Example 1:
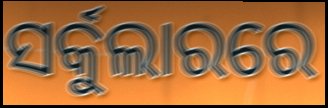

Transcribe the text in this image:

ସର୍କୁଲାରରେ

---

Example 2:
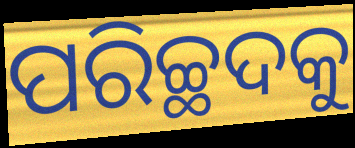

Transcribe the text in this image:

ପରିଚ୍ଛଦକୁ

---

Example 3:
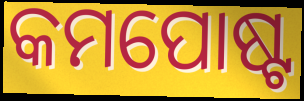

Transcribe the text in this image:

କମପୋଷ୍ଟ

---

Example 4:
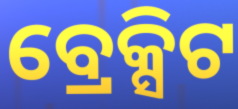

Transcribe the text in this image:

ବ୍ରେକ୍ସିଟ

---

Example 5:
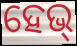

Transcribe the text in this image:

ହେଭ୍